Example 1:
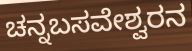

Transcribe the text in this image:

ಚನ್ನಬಸವೇಶ್ವರನ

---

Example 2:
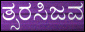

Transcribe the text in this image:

ತ್ಸರಸಿಜವ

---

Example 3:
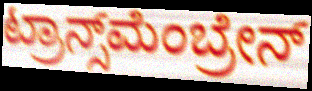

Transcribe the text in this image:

ಟ್ರಾನ್ಸ್‌ಮೆಂಬ್ರೇನ್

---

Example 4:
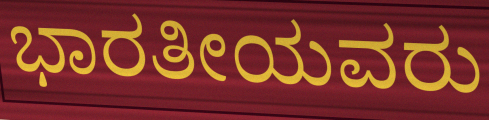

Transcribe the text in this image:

ಭಾರತೀಯವರು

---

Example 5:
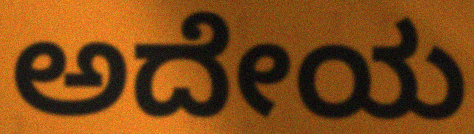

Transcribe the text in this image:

ಅದೇಯ